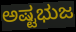
ಅಷ್ಟಭುಜ